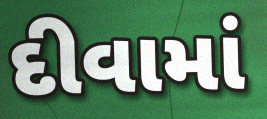
દીવામાં